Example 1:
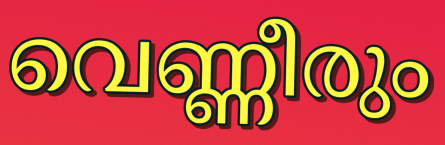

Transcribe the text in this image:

വെണ്ണീരും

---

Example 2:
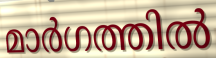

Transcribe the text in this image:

മാർഗത്തിൽ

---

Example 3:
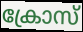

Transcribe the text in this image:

ക്രോസ്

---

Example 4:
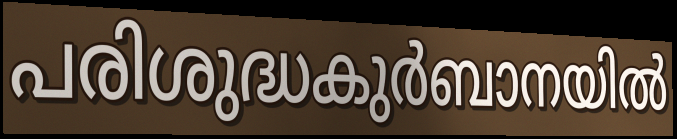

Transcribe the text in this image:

പരിശുദ്ധകുർബാനയിൽ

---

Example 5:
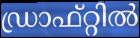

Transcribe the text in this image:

ഡ്രാഫ്റ്റിൽ